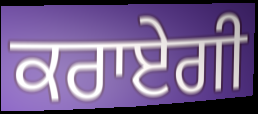
ਕਰਾਏਗੀ